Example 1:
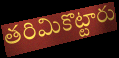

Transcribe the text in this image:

తరిమికొట్టారు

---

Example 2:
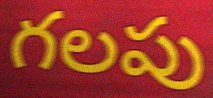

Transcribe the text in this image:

గలపు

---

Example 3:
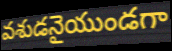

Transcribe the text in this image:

వశుడనైయుండగా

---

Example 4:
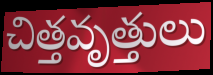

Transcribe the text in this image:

చిత్తవృత్తులు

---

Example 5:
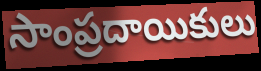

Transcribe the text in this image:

సాంప్రదాయికులు